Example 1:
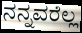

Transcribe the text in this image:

ನನ್ನವರೆಲ್ಲ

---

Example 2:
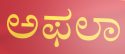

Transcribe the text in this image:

ಅಫಲಾ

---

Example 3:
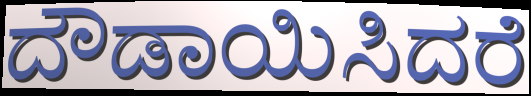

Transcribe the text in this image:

ದೌಡಾಯಿಸಿದರೆ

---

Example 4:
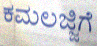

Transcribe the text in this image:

ಕಮಲಜ್ಜಿಗೆ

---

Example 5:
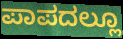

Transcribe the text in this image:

ಪಾಪದಲ್ಲೂ